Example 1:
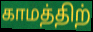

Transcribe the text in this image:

காமத்திற்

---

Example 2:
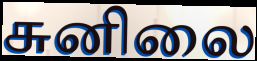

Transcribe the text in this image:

சுனிலை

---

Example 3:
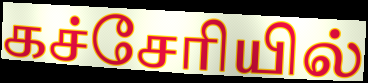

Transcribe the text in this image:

கச்சேரியில்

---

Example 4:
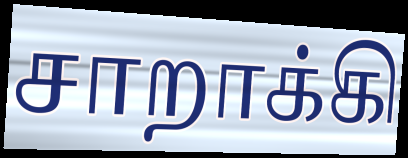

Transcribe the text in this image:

சாறாக்கி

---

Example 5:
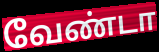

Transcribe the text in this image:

வேண்டா